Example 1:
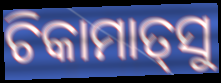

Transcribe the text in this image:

ଚିକାମାତ୍‌ସୁ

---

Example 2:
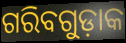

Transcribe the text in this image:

ଗରିବଗୁଡ଼ାକ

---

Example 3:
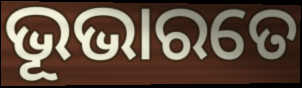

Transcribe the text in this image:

ଭୂଭାରତେ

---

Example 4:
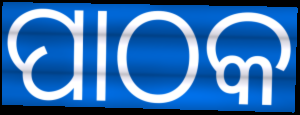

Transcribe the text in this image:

ପାଠକ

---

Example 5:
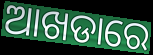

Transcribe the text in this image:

ଆଖଡାରେ